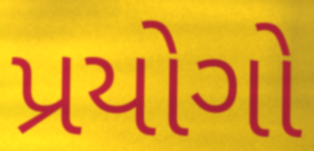
પ્રયોગો